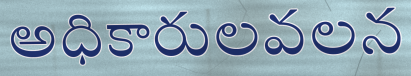
అధికారులవలన